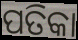
ପତିକା